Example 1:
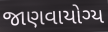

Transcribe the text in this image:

જાણવાયોગ્ય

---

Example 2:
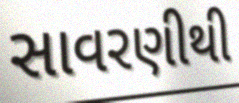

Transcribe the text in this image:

સાવરણીથી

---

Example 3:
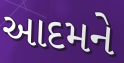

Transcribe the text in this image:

આદમને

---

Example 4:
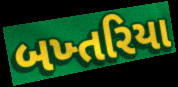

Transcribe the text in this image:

બખ્તરિયા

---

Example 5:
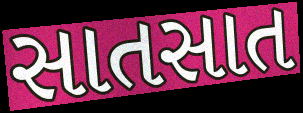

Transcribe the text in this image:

સાતસાત